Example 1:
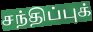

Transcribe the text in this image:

சந்திப்புக்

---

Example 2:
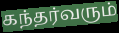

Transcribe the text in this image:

கந்தர்வரும்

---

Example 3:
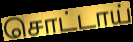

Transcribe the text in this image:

சொட்டாய்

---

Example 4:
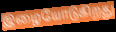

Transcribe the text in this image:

இழையோடுகிறது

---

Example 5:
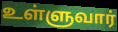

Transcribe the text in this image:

உள்ளுவார்